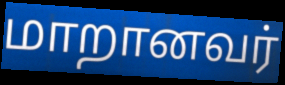
மாறானவர்